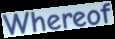
Whereof